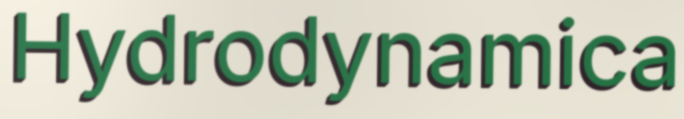
Hydrodynamica